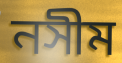
নসীম